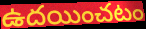
ఉదయించటం